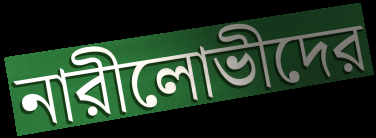
নারীলোভীদের